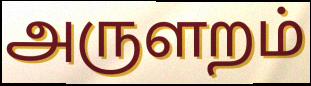
அருளறம்